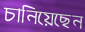
চানিয়েছেন